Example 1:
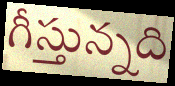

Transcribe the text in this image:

గీస్తున్నది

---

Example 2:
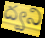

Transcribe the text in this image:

ద్వని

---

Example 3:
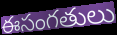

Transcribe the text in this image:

ఈసంగతులు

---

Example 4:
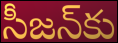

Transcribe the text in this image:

సీజన్‌కు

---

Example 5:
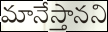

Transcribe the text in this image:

మానేస్తానని